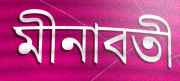
মীনাবতী